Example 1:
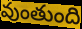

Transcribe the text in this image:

వుంతుంది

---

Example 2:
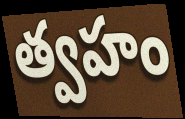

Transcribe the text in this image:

త్వహం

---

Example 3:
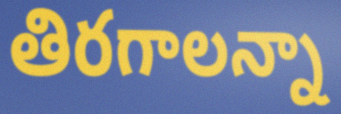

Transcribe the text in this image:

తిరగాలన్నా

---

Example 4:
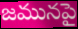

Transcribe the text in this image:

జమునపై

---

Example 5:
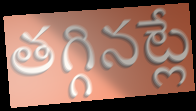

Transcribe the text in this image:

తగ్గినట్లే